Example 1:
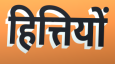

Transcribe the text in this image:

हित्तियों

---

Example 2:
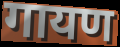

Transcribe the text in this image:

गायण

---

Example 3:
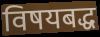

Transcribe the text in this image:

विषयबद्ध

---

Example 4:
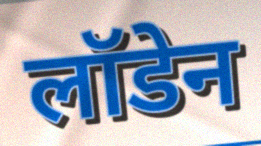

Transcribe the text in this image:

लॉडेन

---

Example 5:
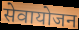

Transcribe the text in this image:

सेवायोजन